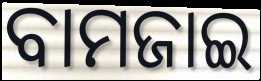
ବାମଜାଇ